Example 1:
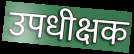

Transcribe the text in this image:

उपधीक्षक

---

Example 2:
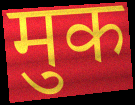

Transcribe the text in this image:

मुक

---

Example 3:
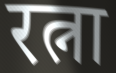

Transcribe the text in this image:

रत्ना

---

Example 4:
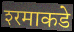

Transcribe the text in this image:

श्रमाकडे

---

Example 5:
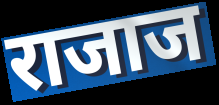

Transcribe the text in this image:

राजाज